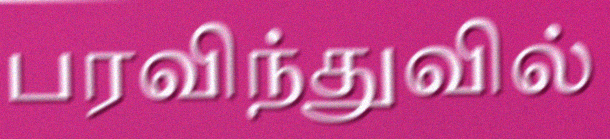
பரவிந்துவில்